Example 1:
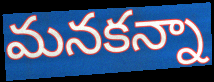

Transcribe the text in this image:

మనకన్నా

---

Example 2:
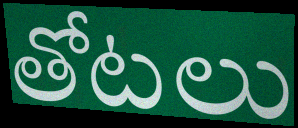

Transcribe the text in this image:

తోటలు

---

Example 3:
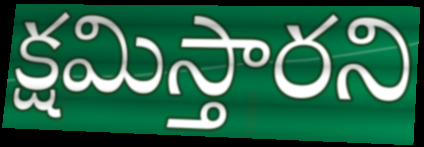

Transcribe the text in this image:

క్షమిస్తారని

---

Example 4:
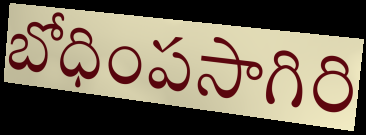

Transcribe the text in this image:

బోధింపసాగిరి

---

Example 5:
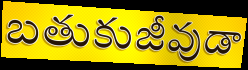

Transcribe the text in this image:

బతుకుజీవుడా